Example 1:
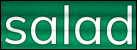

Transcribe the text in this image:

salad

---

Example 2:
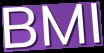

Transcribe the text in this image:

BMI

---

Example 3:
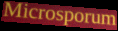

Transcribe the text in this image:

Microsporum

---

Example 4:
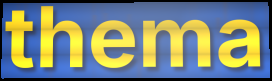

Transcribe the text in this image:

thema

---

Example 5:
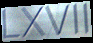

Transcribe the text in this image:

LXVII